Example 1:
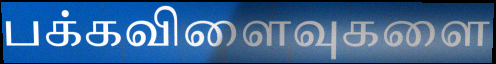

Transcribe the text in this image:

பக்கவிளைவுகளை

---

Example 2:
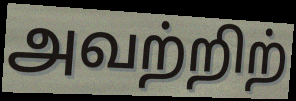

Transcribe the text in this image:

அவற்றிற்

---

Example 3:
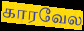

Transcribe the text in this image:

காரவேல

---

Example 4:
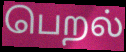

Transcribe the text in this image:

பெறல்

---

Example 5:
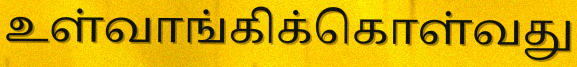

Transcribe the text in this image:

உள்வாங்கிக்கொள்வது